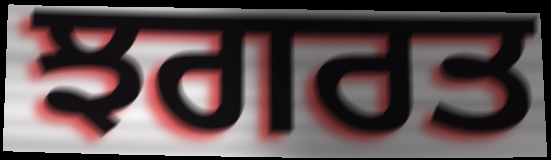
ਝਗਰਤ